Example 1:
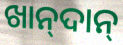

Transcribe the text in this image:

ଖାନ୍‍ଦାନ୍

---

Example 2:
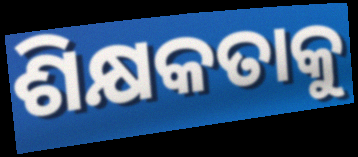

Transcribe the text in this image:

ଶିକ୍ଷକତାକୁ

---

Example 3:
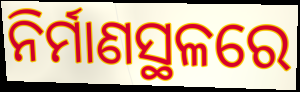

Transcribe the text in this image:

ନିର୍ମାଣସ୍ଥଳରେ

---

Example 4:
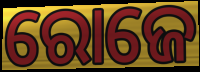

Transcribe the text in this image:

ରୋଜେ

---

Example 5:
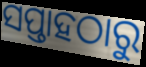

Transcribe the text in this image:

ସପ୍ତାହଠାରୁ